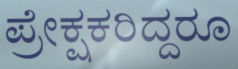
ಪ್ರೇಕ್ಷಕರಿದ್ದರೂ